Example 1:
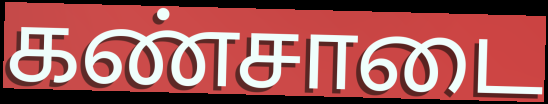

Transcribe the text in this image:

கண்சாடை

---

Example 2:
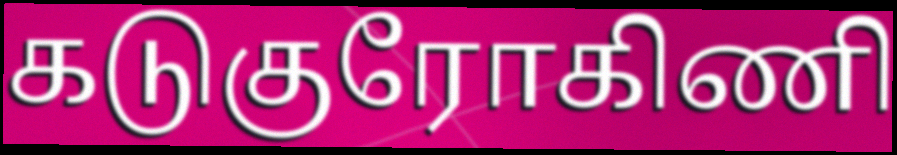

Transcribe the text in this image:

கடுகுரோகிணி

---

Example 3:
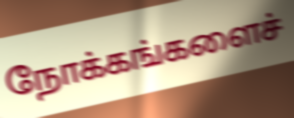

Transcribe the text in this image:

நோக்கங்களைச்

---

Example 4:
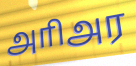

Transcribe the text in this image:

அரிஅர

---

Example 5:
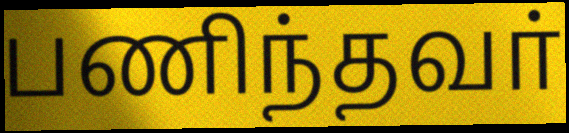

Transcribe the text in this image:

பணிந்தவர்